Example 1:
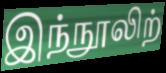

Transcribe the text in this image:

இந்நூலிற்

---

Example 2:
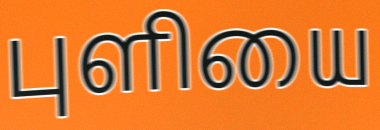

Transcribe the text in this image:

புளியை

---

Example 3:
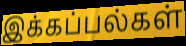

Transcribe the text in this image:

இக்கப்பல்கள்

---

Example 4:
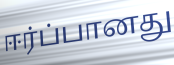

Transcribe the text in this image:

ஈர்ப்பானது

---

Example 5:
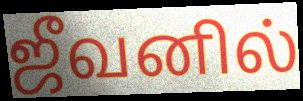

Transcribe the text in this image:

ஜீவனில்